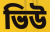
ভিউ